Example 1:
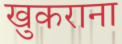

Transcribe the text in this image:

खुकराना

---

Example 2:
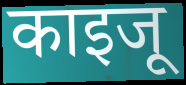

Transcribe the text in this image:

काइजू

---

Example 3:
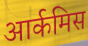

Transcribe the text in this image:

आर्कमिस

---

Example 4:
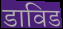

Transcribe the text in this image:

डाविड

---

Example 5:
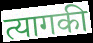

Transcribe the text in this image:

त्यागकी